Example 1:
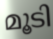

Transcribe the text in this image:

മൂടി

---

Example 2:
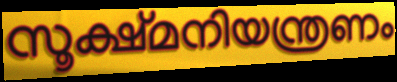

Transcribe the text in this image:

സൂക്ഷ്മനിയന്ത്രണം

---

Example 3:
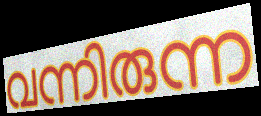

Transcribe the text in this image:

വന്നിരുന്ന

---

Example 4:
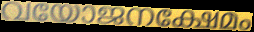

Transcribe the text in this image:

വയോജനക്ഷേമം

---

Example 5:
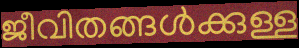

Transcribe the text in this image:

ജീവിതങ്ങൾക്കുള്ള